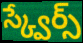
స్క్వేర్స్